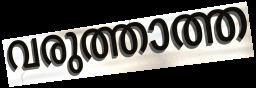
വരുത്താത്ത